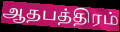
ஆதபத்திரம்